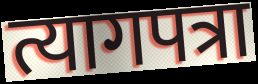
त्यागपत्रा